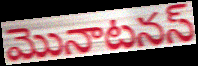
మొనాటనస్